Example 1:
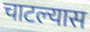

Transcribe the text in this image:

चाटल्यास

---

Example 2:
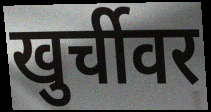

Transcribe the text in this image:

खुर्चीवर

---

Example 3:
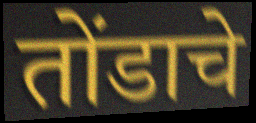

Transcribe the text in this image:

तोंडाचे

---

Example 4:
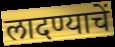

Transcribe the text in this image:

लादण्याचें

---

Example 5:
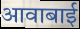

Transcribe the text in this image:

आवाबाई